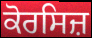
ਕੋਰਸਿਜ਼